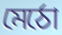
মেঠো